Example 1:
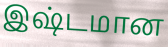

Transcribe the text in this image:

இஷ்டமான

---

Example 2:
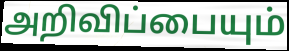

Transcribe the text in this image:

அறிவிப்பையும்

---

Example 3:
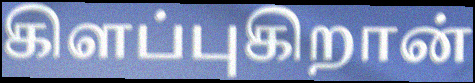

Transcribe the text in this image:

கிளப்புகிறான்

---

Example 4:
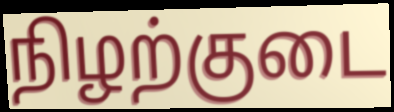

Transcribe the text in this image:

நிழற்குடை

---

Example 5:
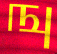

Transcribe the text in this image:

ஙு